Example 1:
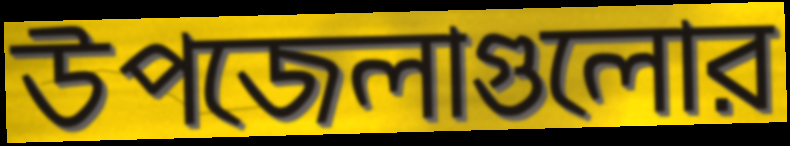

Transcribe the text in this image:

উপজেলাগুলোর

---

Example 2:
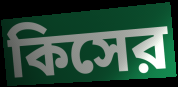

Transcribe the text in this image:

কিসের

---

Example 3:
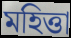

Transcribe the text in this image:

মহিত্তা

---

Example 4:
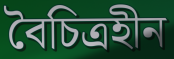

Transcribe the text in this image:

বৈচিত্রহীন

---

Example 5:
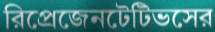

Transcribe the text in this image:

রিপ্রেজেনটেটিভসের